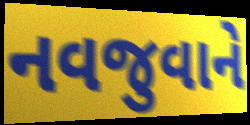
નવજુવાને